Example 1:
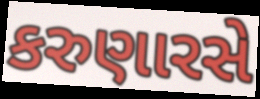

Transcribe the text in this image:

કરુણારસે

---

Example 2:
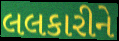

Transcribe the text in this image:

લલકારીને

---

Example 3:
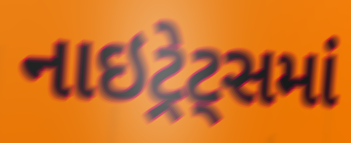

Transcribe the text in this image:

નાઇટ્રેટ્સમાં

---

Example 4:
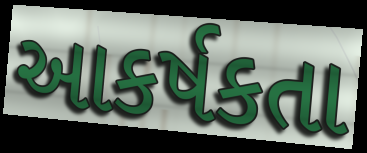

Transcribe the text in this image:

આકર્ષકતા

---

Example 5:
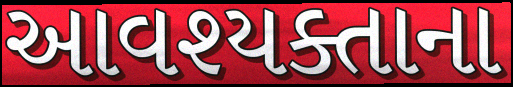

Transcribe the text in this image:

આવશ્યક્તાના